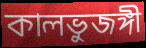
কালভুজঙ্গী